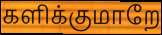
களிக்குமாறே